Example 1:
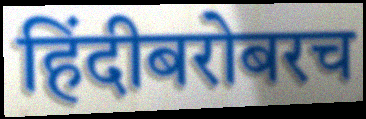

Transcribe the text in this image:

हिंदीबरोबरच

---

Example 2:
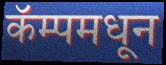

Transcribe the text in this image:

कॅम्पमधून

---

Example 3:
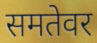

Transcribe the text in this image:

समतेवर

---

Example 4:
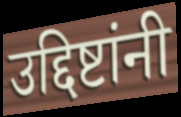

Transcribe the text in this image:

उद्दिष्टांनी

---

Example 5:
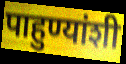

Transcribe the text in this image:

पाहुण्यांशी